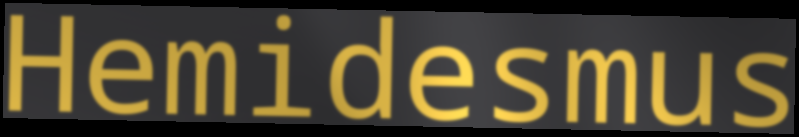
Hemidesmus